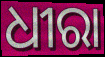
ଧୀରା